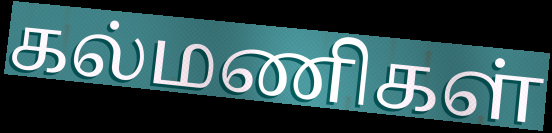
கல்மணிகள்